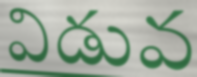
విడువ